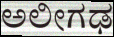
ಅಲೀಗಢ